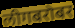
लीगबरोबर